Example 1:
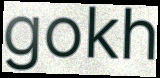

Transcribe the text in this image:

gokh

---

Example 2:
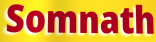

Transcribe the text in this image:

Somnath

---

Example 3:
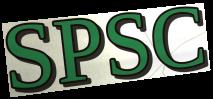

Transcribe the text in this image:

SPSC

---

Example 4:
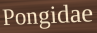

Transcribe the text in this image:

Pongidae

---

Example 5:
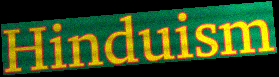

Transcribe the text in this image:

Hinduism